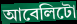
আবেলিটো